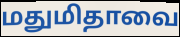
மதுமிதாவை